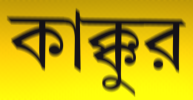
কাক্কুর